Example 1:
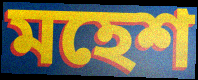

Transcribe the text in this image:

মহেশ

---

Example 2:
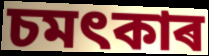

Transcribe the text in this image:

চমৎকাৰ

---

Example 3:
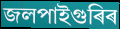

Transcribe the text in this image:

জলপাইগুৰিৰ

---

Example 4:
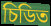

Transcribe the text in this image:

চিডিত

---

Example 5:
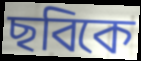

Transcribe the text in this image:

ছবিকে